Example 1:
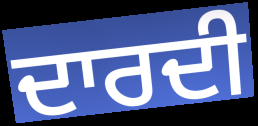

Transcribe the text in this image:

ਦਾਰਦੀ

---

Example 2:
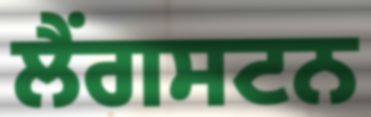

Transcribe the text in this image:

ਲੈਂਗਸਟਨ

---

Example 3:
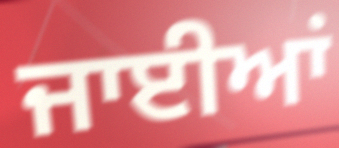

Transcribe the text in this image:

ਜਾਈਆਂ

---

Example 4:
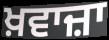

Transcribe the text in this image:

ਖ਼ਵਾਜ਼ਾ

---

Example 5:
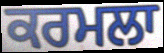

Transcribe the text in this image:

ਕਰਮਲਾ